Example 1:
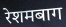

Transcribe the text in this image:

रेशमबाग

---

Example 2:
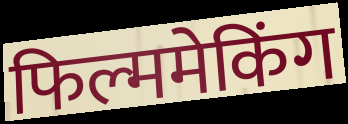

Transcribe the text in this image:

फिल्‍ममेकिंग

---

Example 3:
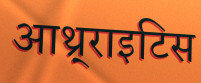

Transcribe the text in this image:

आथ्र्राइटिस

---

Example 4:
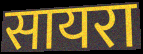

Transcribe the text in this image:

सायरा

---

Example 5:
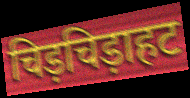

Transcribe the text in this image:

चिड़चिड़ाहट